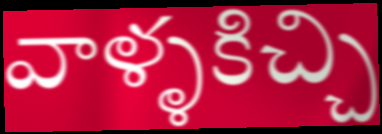
వాళ్ళకిచ్చి